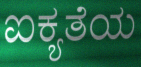
ಐಕ್ಯತೆಯ